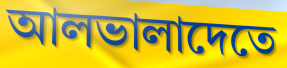
আলভালাদেতে